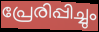
പ്രേരിപ്പിച്ചും